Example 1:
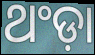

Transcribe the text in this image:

ଥଂଡ଼ା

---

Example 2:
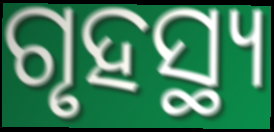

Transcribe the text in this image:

ଗୃହସ୍ଥ୍ୟ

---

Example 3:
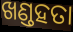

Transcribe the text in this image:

ଖଣ୍ଡହତା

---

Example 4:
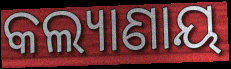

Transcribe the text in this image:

କଲ୍ୟାଣାୟ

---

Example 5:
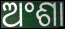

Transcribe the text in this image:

ଅଂଶା